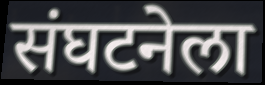
संघटनेला